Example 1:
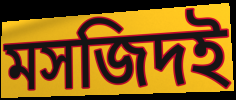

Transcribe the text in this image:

মসজিদই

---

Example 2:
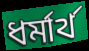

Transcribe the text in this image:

ধর্মার্থ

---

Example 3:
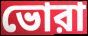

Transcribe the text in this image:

ভোরা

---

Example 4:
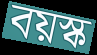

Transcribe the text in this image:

বয়স্ক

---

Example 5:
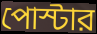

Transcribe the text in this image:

পোস্টার